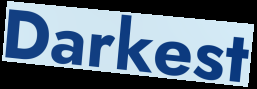
Darkest